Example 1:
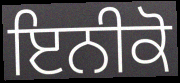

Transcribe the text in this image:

ਇਨੀਕੋ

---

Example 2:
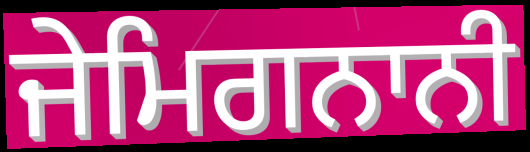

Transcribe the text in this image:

ਜੇਮਿਗਨਾਨੀ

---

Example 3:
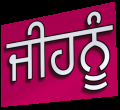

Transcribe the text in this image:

ਜੀਹਨੂੰ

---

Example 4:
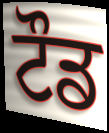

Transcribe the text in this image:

ਟੌਡ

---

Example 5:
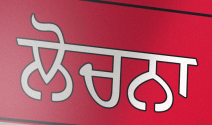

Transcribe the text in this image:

ਲੋਚਨਾ